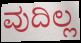
ವುದಿಲ್ಲ